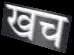
खच